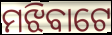
ମଝିବାଟେ